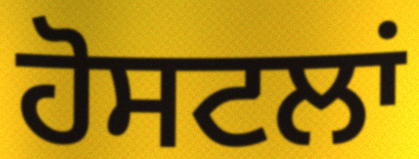
ਹੋਸਟਲਾਂ